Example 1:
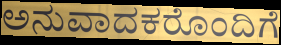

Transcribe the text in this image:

ಅನುವಾದಕರೊಂದಿಗೆ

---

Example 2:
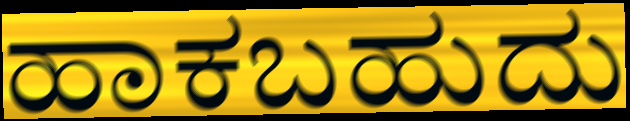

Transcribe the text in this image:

ಹಾಕಬಹುದು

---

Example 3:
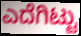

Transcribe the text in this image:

ಎದೆಗಿಟ್ಟು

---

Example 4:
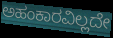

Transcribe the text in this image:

ಅಹಂಕಾರವಿಲ್ಲದೇ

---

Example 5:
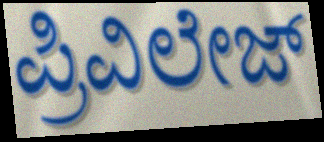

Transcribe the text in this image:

ಪ್ರಿವಿಲೇಜ್